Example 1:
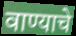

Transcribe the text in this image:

वाण्याचे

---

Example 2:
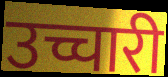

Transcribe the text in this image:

उच्चारी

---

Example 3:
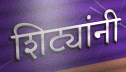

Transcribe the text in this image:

शिट्यांनी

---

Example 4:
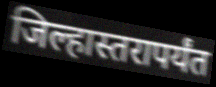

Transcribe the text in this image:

जिल्हास्तरापर्यंत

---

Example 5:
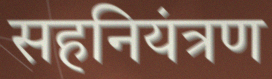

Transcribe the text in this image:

सहनियंत्रण